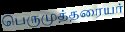
பெருமுத்தரையர்